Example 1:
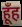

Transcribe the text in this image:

हूँह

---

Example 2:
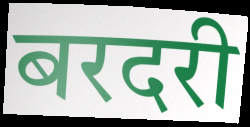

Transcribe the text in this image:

बरदरी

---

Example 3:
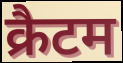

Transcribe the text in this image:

क्रैटम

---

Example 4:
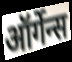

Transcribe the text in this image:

ऑर्गेन्स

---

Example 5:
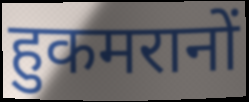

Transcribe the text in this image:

हुकमरानों